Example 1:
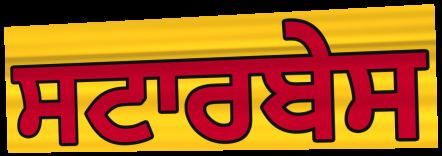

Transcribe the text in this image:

ਸਟਾਰਬੇਸ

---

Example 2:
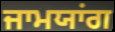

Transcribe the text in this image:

ਜਾਮਯਾਂਗ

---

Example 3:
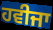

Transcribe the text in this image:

ਹਵੀਜਾ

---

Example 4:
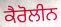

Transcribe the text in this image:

ਕੈਰੋਲੀਨ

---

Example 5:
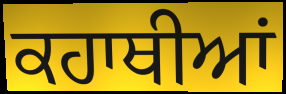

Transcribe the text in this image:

ਕਹਾਥੀਆਂ